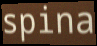
spina